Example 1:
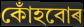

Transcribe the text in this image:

কোঁহবোৰ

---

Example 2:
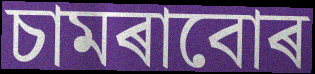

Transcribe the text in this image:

চামৰাবোৰ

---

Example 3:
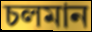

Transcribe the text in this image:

চলমান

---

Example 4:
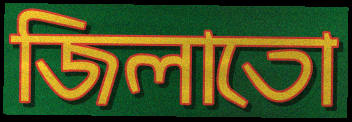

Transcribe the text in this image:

জিলাতো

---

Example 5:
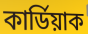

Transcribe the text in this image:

কাৰ্ডিয়াক